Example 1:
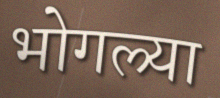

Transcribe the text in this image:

भोगल्या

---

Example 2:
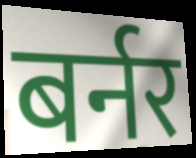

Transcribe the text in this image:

बर्नर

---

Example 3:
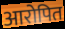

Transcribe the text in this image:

आरोपित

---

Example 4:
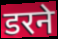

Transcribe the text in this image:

डरने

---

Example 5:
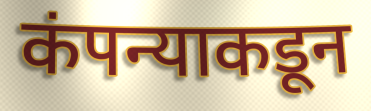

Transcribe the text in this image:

कंपन्याकडून